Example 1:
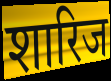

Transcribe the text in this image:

शारिज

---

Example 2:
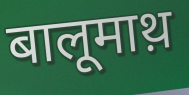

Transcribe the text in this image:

बालूमाथ़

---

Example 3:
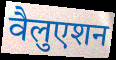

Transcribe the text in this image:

वैलुएशन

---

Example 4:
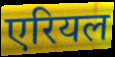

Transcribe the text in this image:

एरियल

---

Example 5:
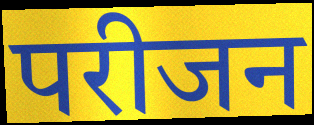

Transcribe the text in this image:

परीजन